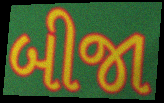
બીજા